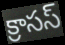
క్రాసస్